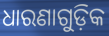
ଧାରଣାଗୁଡ଼ିକ